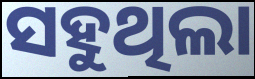
ସହୁଥିଲା